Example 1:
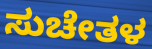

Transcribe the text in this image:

ಸುಚೇತಳ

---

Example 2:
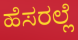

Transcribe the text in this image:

ಹೆಸರಲ್ಲೆ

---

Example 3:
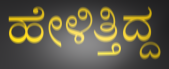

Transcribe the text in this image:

ಹೇಳಿತ್ತಿದ್ದ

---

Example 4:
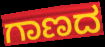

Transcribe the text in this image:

ಗಾಣದ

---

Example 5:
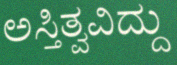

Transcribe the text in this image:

ಅಸ್ತಿತ್ವವಿದ್ದು